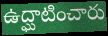
ఉద్ఘాటించారు